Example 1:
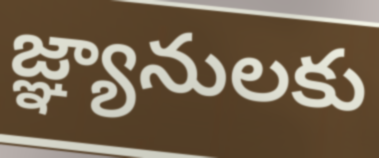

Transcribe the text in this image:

జ్ఞ్యానులకు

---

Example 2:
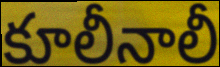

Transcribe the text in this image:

కూలీనాలీ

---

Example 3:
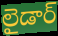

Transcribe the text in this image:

లైడార్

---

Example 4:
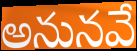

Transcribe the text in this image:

అనునవే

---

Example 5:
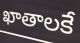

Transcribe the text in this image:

ఖాతాలకే